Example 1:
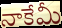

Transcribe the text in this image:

నాకేమీ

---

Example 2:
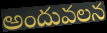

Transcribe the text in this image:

అందువలన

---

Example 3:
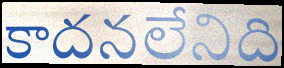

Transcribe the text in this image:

కాదనలేనిది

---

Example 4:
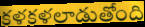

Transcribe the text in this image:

కళకళలాడుతోంది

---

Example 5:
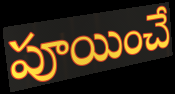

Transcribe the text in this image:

పూయించే